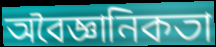
অবৈজ্ঞানিকতা